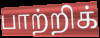
பாற்றிக்